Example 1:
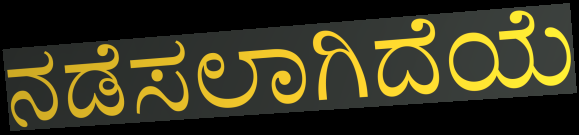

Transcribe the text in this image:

ನಡೆಸಲಾಗಿದೆಯೆ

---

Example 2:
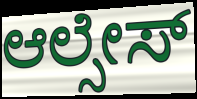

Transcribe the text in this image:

ಆಲ್ಸೇಸ್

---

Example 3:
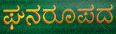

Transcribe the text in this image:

ಘನರೂಪದ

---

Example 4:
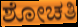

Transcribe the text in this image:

ಶೋಚತಿ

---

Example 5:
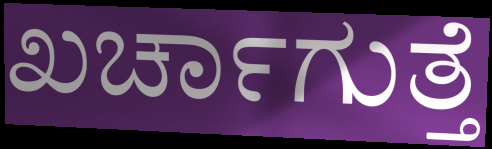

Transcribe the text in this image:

ಖರ್ಚಾಗುತ್ತೆ